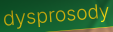
dysprosody